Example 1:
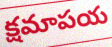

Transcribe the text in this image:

క్షమాపయ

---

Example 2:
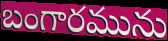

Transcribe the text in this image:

బంగారమును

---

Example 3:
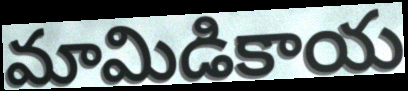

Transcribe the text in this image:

మామిడికాయ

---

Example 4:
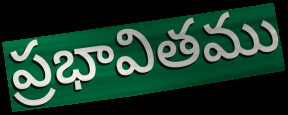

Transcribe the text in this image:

ప్రభావితము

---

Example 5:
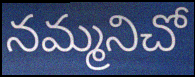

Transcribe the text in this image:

నమ్మనిచో